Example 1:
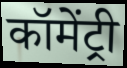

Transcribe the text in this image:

कॉमेंट्री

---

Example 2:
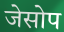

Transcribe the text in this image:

जेसोप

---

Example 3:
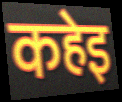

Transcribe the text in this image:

कहेइ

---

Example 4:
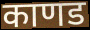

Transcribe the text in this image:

काणड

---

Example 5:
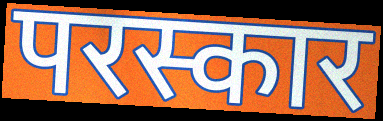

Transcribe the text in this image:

परस्कार